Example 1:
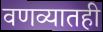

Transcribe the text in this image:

वणव्यातही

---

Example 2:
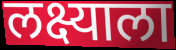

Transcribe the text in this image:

लक्ष्याला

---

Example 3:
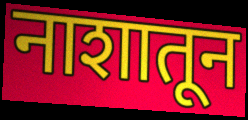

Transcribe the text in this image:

नाशातून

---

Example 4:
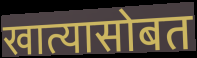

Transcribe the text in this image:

खात्यासोबत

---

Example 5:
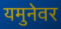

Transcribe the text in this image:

यमुनेवर